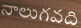
నాలుగవది